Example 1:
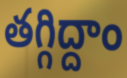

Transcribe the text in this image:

తగ్గిద్దాం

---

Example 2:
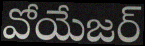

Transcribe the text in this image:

వోయేజర్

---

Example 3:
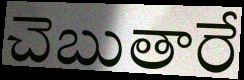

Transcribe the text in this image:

చెబుతారే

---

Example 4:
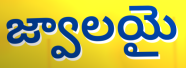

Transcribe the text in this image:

జ్వాలయై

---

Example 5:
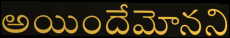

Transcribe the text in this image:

అయిందేమోనని